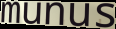
munus